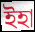
ইহা